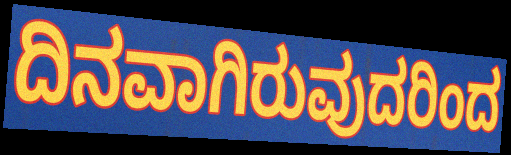
ದಿನವಾಗಿರುವುದರಿಂದ